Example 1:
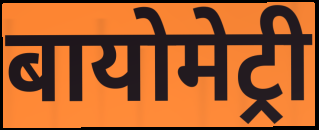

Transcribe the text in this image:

बायोमेट्री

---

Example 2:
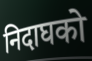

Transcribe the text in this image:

निदाघको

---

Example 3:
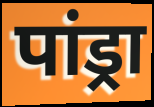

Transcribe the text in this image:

पांड्रा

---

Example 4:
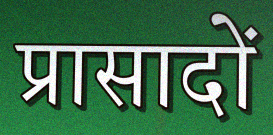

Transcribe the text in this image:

प्रासादों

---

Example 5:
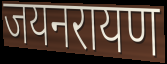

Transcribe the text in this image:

जयनरायण